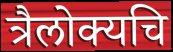
त्रैलोक्यचि